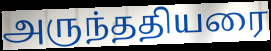
அருந்ததியரை